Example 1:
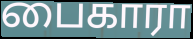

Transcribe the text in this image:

பைகாரா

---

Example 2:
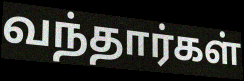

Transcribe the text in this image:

வந்தார்கள்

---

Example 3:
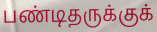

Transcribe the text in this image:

பண்டிதருக்குக்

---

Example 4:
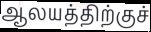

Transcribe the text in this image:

ஆலயத்திற்குச்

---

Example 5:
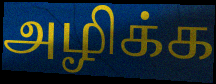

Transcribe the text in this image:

அழிக்க